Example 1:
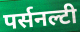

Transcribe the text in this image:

पर्सनल्टी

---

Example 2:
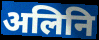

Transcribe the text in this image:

अलिनि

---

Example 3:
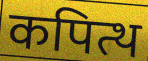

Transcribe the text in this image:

कपित्थ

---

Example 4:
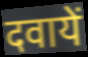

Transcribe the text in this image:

दवायें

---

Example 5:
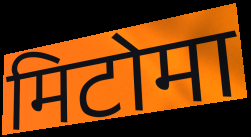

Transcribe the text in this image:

मिटोमा